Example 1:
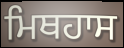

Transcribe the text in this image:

ਮਿਥਹਾਸ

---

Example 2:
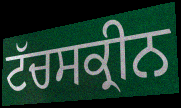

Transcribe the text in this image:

ਟੱਚਸਕ੍ਰੀਨ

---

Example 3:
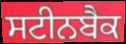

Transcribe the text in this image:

ਸਟੀਨਬੈਕ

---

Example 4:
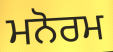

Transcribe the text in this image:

ਮਨੋਰਮ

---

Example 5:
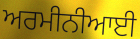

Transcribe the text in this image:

ਅਰਮੀਨੀਆਈ